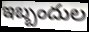
ఇబ్బందుల